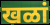
खळां